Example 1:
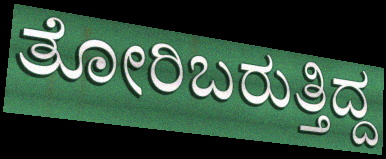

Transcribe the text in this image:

ತೋರಿಬರುತ್ತಿದ್ದ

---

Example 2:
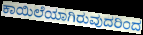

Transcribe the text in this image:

ಕಾಯಿಲೆಯಾಗಿರುವುದರಿಂದ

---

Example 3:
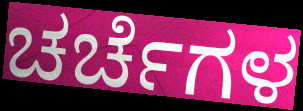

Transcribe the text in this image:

ಚರ್ಚೆಗಳ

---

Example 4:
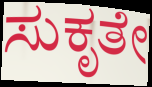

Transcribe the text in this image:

ಸುಕೃತೇ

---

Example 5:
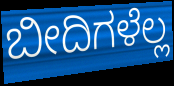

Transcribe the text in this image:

ಬೀದಿಗಳೆಲ್ಲ